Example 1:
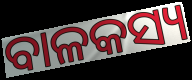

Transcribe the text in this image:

ବାଳକସ୍ୟ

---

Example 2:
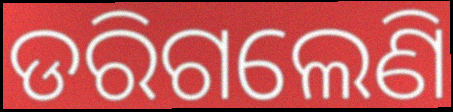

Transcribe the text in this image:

ଡରିଗଲେଣି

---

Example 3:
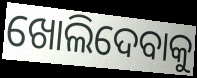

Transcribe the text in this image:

ଖୋଲିଦେବାକୁ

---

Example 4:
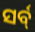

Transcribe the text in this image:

ସର୍ବ୍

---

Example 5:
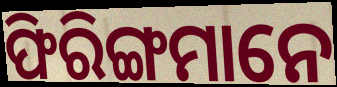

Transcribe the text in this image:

ଫିରିଙ୍ଗମାନେ